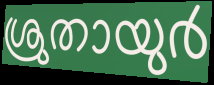
ശ്രുതായുർ